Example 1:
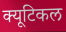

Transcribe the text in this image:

क्यूटिकल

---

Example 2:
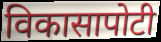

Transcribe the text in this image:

विकासापोटी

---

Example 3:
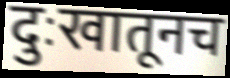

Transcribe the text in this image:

दुःखातूनच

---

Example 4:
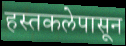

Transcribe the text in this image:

हस्तकलेपासून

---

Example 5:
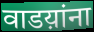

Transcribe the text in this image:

वाडय़ांना